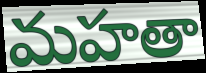
మహతా